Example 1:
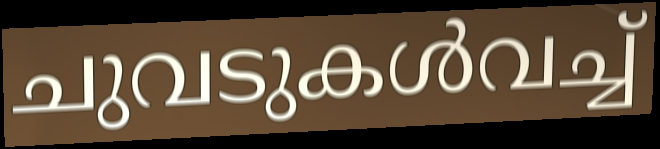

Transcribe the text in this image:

ചുവടുകൾവച്ച്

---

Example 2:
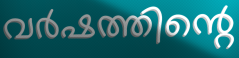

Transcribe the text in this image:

വർഷത്തിന്റെ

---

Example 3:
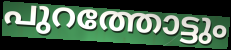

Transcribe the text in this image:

പുറത്തോട്ടും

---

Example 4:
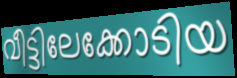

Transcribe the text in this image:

വീട്ടിലേക്കോടിയ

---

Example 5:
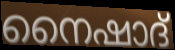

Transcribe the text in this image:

നൈഷാദ്